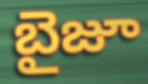
బైజూ